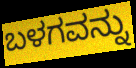
ಬಳಗವನ್ನು